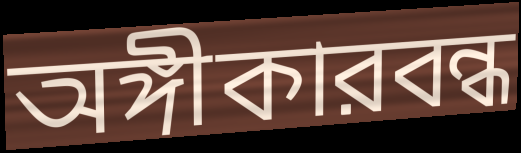
অঙ্গীকারবন্ধ